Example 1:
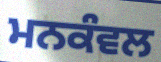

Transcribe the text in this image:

ਮਨਕੰਵਲ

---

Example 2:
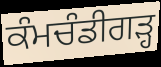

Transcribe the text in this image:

ਕੰਮਚੰਡੀਗੜ੍ਹ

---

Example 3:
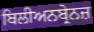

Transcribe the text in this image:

ਬਿਲੀਅਨਬ੍ਰੇਨਜ਼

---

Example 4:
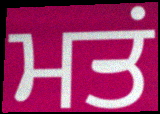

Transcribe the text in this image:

ਮਤਂ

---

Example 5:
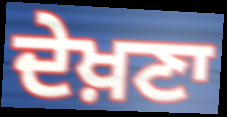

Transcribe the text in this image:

ਦੇਖ਼ਣਾ